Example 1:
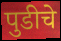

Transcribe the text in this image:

पुडीचे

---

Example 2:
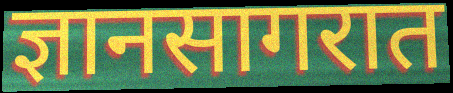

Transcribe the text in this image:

ज्ञानसागरात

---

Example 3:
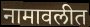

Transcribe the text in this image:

नामावलीत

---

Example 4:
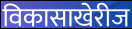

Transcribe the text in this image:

विकासाखेरीज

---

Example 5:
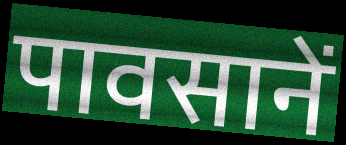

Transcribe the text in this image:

पावसानें